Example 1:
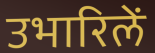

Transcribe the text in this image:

उभारिलें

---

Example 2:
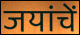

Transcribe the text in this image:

जयांचें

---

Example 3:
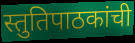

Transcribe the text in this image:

स्तुतिपाठकांची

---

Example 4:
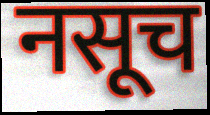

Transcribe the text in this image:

नसूच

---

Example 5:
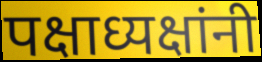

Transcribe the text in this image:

पक्षाध्यक्षांनी